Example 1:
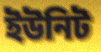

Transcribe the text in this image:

ইউনিট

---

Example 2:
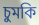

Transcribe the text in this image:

চুমকি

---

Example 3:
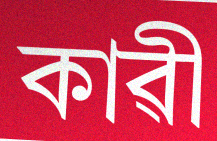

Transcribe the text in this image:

কাৱী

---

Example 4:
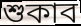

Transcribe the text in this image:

শুকাব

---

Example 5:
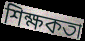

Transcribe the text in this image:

শিক্ষকতা